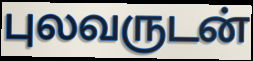
புலவருடன்